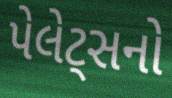
પેલેટ્સનો